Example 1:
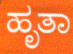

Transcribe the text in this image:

ಹೃತಾ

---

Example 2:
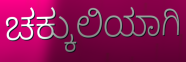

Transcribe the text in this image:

ಚಕ್ಕುಲಿಯಾಗಿ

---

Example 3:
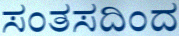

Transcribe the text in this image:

ಸಂತಸದಿಂದ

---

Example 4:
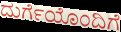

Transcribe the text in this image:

ದುರ್ಗೆಯೊಂದಿಗೆ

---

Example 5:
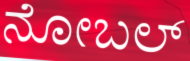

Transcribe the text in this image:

ನೋಬಲ್